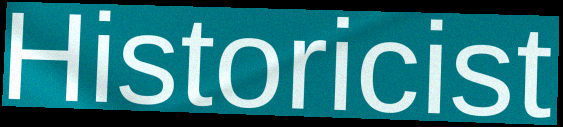
Historicist